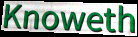
Knoweth